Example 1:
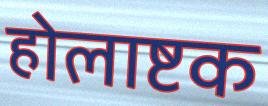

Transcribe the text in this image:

होलाष्टक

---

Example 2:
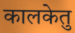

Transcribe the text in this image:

कालकेतु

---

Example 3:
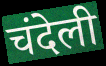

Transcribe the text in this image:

चंदेली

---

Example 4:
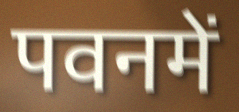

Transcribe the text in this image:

पवनमें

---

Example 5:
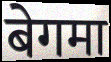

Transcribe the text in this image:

बेगमा